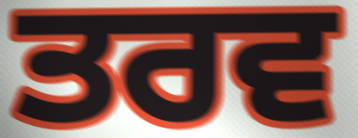
ਤਰਵ